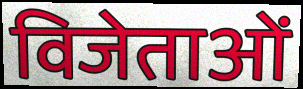
विजेताओं